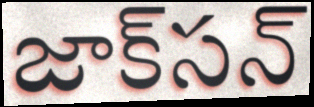
జాక్‌సన్